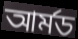
আৰ্মড